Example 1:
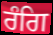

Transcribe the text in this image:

ਰੰਗਿ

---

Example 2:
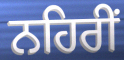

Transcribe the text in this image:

ਨਹਿਰੀਂ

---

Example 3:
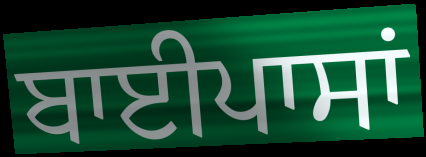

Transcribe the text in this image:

ਬਾਈਪਾਸਾਂ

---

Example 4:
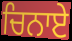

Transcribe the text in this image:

ਚਿਨਾਏ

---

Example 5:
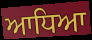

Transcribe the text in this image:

ਆਧਿਆ